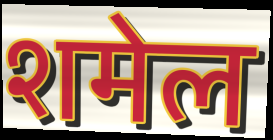
शमेल